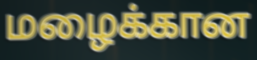
மழைக்கான